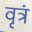
वृत्रं